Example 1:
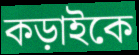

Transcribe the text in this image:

কড়াইকে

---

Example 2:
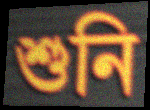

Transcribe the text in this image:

শুনি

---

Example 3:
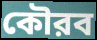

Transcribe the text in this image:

কৌরব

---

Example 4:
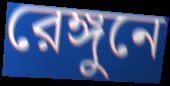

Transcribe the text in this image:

রেঙ্গুনে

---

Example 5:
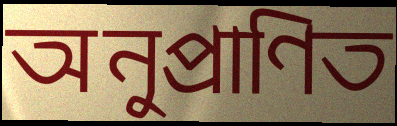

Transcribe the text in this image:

অনুপ্রাণিত